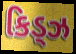
કિડ્ઝ